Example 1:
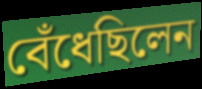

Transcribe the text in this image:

বেঁধেছিলেন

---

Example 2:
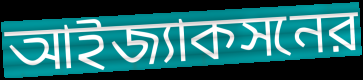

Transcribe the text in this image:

আইজ্যাকসনের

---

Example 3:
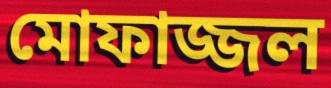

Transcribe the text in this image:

মোফাজ্জল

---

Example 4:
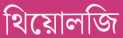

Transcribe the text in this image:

থিয়োলজি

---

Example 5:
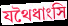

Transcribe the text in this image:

যথৈধাংসি